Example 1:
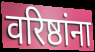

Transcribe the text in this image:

वरिष्ठांना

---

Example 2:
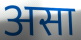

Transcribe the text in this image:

असा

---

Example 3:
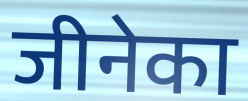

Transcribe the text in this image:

जीनेका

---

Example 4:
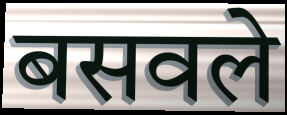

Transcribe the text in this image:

बसवले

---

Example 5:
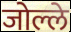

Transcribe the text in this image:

जोल्ले